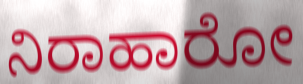
ನಿರಾಹಾರೋ